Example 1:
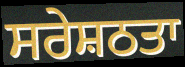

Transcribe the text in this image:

ਸਰੇਸ਼ਠਤਾ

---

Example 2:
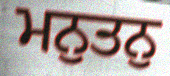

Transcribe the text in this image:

ਮਨੁਤਨੁ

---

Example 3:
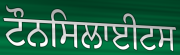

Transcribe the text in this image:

ਟੌਨਸਿਲਾਈਟਸ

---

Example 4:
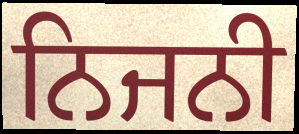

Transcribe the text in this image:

ਨਿਜਨੀ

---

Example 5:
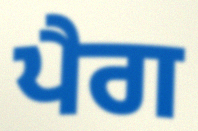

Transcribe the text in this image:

ਪੈਗ